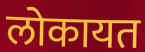
लोकायत